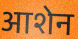
आशेन